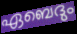
ഏബെദും